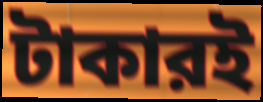
টাকারই